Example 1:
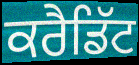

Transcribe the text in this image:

ਕਰੈਡਿੱਟ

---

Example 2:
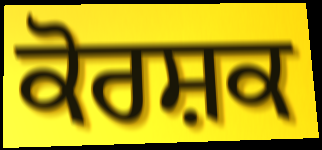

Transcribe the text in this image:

ਕੋਰਸ਼ਕ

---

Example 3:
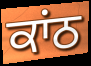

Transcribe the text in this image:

ਕਾਂਠ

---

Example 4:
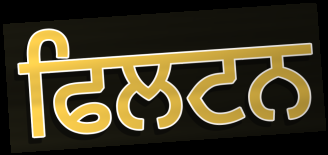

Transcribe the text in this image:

ਫਿਲਟਨ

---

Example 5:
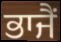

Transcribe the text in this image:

ਭਾਜੈਂ